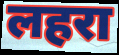
लहरा